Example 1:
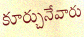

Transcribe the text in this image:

కూర్చునేవారు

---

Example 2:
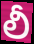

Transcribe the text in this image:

లీ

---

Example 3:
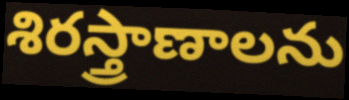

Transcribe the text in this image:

శిరస్త్రాణాలను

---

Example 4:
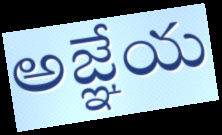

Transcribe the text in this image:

అజ్ఞేయ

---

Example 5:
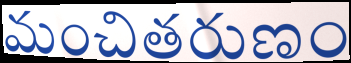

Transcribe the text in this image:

మంచితరుణం